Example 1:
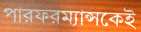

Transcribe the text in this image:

পারফরম্যান্সকেই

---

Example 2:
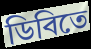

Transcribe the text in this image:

ডিবিতে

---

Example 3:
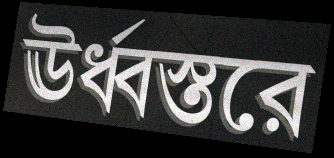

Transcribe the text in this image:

ঊর্ধ্বস্তরে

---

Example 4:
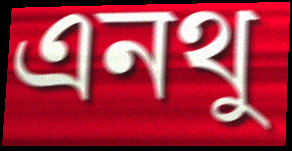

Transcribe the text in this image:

এনথু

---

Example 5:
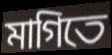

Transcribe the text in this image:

মাগিতে